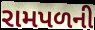
રામપળની